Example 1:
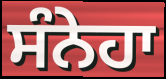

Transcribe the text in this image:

ਸੰਨੇਹਾ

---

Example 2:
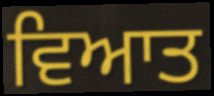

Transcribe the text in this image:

ਵਿਆਤ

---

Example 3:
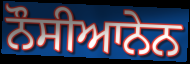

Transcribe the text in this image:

ਨੌਸੀਆਨੇਨ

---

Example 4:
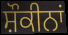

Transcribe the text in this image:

ਸ਼ੌਕੀਨਾਂ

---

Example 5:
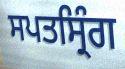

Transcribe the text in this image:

ਸਪਤਸ੍ਰਿੰਗ